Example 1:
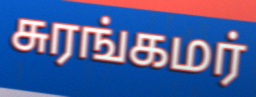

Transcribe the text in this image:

சுரங்கமர்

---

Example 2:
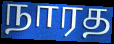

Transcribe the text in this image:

நாரத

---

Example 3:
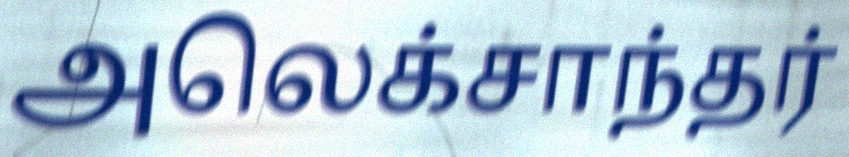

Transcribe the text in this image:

அலெக்சாந்தர்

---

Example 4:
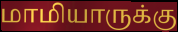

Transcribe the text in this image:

மாமியாருக்கு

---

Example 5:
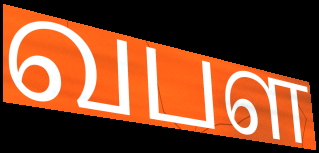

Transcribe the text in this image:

வபள